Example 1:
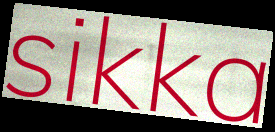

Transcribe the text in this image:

sikka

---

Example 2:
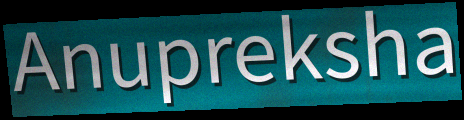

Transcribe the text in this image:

Anupreksha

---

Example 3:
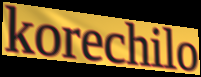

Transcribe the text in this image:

korechilo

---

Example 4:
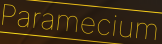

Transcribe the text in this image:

Paramecium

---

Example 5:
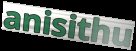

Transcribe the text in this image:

anisithu